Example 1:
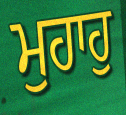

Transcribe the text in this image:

ਮੁਹਾਹੁ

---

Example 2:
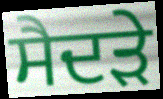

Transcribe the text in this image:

ਸੈਦੜੇ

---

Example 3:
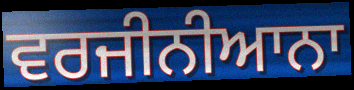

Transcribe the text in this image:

ਵਰਜੀਨੀਆਨਾ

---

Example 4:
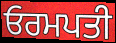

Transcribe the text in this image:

ਓਰਮਪਤੀ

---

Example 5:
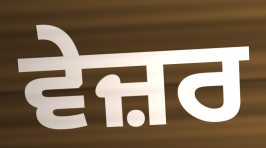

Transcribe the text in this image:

ਵੇਜ਼ਰ